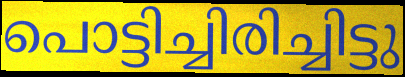
പൊട്ടിച്ചിരിച്ചിട്ടു